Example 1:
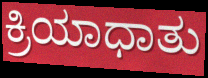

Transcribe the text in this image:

ಕ್ರಿಯಾಧಾತು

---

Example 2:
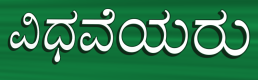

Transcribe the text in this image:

ವಿಧವೆಯರು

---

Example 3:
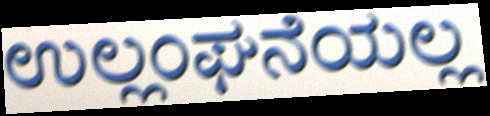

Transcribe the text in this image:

ಉಲ್ಲಂಘನೆಯಲ್ಲ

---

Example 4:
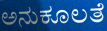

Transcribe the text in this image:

ಅನುಕೂಲತೆ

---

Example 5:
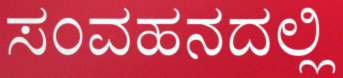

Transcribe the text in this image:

ಸಂವಹನದಲ್ಲಿ